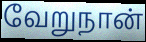
வேறுநான்